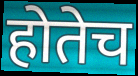
होतेच